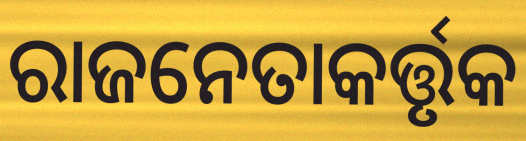
ରାଜନେତାକର୍ତ୍ତୃକ